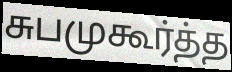
சுபமுகூர்த்த